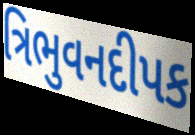
ત્રિભુવનદીપક